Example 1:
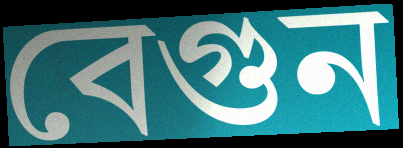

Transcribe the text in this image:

বেগুন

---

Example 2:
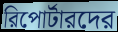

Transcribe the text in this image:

রিপোর্টারদের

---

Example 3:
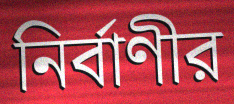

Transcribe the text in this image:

নির্বাণীর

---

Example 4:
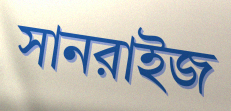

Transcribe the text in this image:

সানরাইজ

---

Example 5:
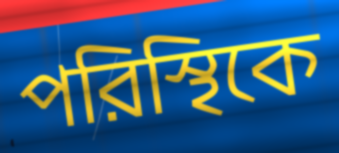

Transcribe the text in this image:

পরিস্থিকে